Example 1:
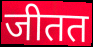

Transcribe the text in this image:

जीतत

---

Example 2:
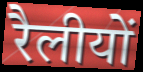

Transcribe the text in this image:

रैलीयों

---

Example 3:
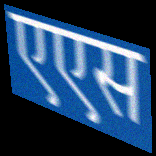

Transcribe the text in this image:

एएस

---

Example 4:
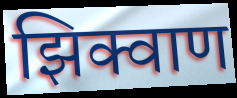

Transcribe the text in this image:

झिक्वाण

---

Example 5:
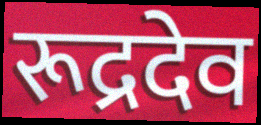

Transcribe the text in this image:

रूद्रदेव